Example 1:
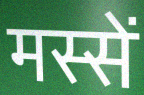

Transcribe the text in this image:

मस्सें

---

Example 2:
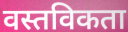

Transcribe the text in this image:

वस्तविकता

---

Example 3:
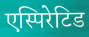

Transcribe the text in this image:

एस्पिरेटिड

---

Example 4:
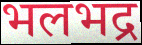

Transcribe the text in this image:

भलभद्र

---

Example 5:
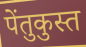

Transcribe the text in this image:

पेंतुकुस्त